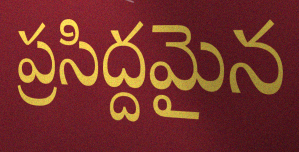
ప్రసిద్దమైన